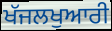
ਖੱਜਲਖੁਆਰੀ